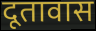
दूतावास